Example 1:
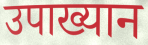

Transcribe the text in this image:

उपाख्यान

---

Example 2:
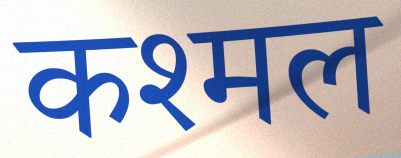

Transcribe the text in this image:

कश्मल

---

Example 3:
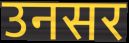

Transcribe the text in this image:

उनसर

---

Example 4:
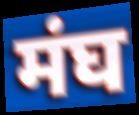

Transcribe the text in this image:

मंघ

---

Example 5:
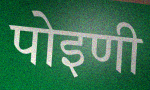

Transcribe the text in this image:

पोइणी